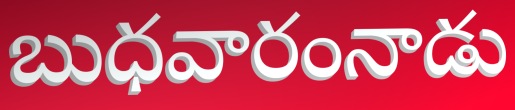
బుధవారంనాడు